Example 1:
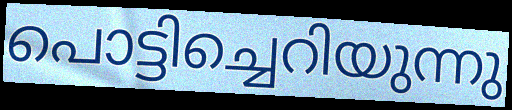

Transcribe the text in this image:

പൊട്ടിച്ചെറിയുന്നു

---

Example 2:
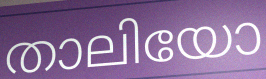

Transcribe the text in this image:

താലിയോ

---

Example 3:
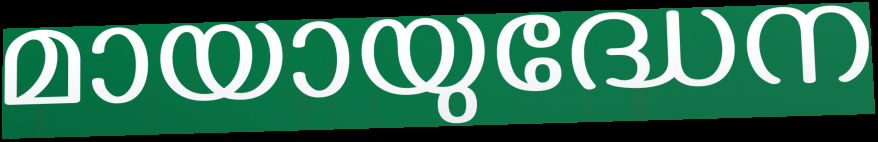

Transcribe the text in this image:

മായായുദ്ധേന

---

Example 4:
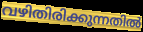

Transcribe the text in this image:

വഴിതിരിക്കുന്നതിൽ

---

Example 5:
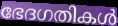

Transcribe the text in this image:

ഭേദഗതികൾ